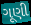
ગૂણી